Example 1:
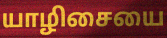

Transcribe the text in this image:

யாழிசையை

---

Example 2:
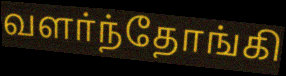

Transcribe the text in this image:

வளர்ந்தோங்கி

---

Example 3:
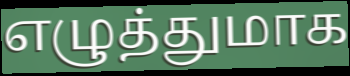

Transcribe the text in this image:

எழுத்துமாக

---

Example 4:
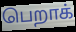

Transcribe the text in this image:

பெறாக்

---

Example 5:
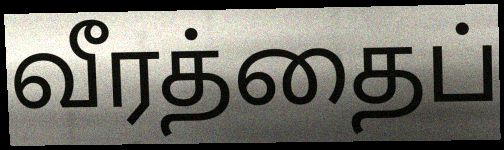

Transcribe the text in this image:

வீரத்தைப்